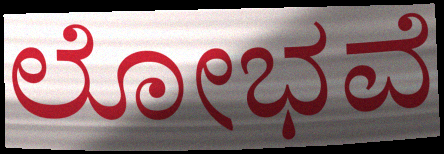
ಲೋಭವೆ